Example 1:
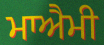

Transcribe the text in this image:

ਮਾਐਮੀ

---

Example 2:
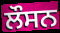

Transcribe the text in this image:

ਲੌਸਨ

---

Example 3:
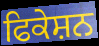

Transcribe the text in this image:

ਫਿਕੇਸ਼ਨ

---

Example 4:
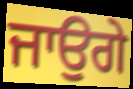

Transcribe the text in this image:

ਜਾਉਗੇ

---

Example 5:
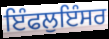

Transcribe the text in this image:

ਇੰਫਲੁਇੰਸਰ